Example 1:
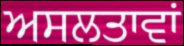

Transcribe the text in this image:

ਅਸਲਤਾਵਾਂ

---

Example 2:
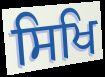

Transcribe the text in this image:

ਸਿਖਿ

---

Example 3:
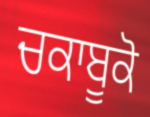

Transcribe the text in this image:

ਚਕਾਬੂਕੋ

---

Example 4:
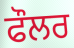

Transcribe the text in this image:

ਫੌਲਰ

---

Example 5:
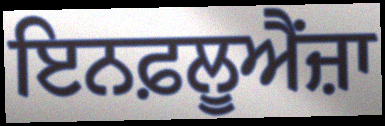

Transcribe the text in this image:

ਇਨਫ਼ਲੂਐਂਜ਼ਾ